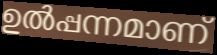
ഉൽപ്പന്നമാണ്